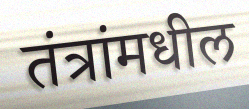
तंत्रांमधील